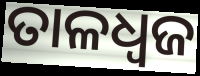
ତାଳଧ୍ୱଜ